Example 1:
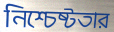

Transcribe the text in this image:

নিশ্চেষ্টতার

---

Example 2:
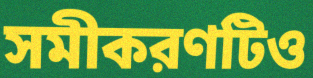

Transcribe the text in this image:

সমীকরণটিও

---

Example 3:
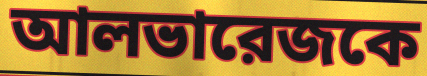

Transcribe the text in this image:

আলভারেজকে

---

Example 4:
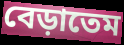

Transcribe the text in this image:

বেড়াতেম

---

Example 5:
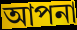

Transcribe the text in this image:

আপনা